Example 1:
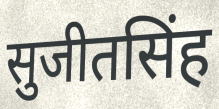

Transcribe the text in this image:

सुजीतसिंह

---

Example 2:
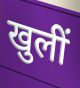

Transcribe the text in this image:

खुलीं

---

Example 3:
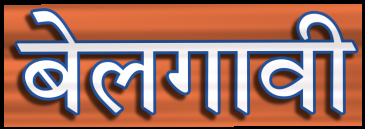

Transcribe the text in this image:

बेलगावी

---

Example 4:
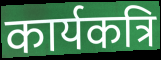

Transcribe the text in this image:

कार्यकत्रि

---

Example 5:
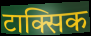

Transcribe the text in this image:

टाक्सिक